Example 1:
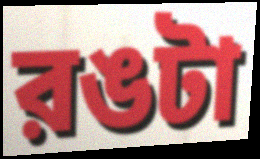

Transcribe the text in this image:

রঙটা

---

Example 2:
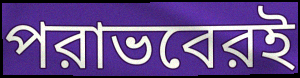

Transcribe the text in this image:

পরাভবেরই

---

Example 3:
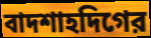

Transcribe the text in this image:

বাদশাহদিগের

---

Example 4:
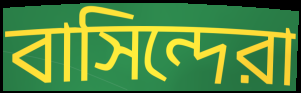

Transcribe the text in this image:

বাসিন্দেরা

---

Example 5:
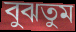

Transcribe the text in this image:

বুঝতুম